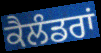
ਕੈਲੰਡਰਾਂ